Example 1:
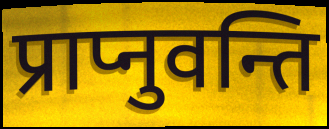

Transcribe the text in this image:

प्राप्नुवन्ति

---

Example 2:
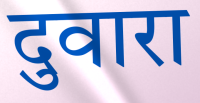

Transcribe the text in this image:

दुवारा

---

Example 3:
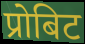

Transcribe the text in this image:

प्रोबिट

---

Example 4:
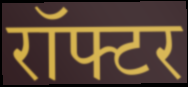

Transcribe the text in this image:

रॉफ्टर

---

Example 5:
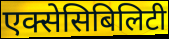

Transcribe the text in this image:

एक्सेसिबिलिटी